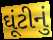
ઘૂંટીનું